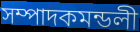
সম্পাদকমন্ডলী